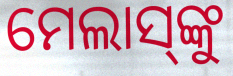
ମେଲାସ୍‌ଙ୍କୁ